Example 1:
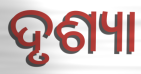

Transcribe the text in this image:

ଦୃଶ୍ୟା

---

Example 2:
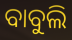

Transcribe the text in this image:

ବାବୁଲି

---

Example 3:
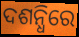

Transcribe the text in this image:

ଦଶନ୍ଧିରେ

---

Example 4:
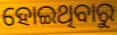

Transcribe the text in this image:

ହୋଇଥିବାରୁ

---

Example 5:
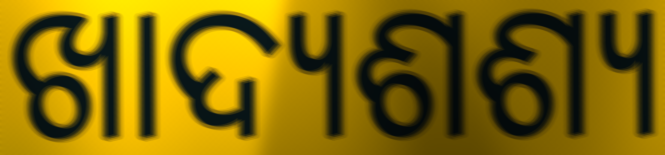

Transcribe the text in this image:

ଖାଦ୍ୟଶଶ୍ୟ